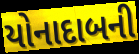
યોનાદાબની